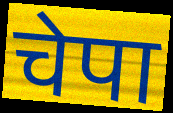
चेपा